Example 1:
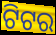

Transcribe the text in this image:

ଟିଟର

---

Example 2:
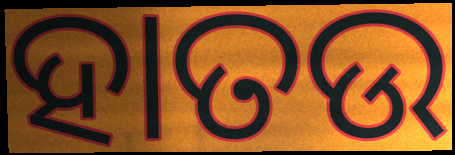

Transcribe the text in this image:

ହାତଉ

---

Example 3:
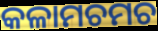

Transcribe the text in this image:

କଳାମଚମଚ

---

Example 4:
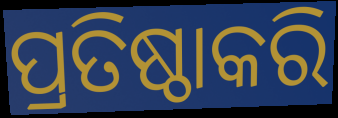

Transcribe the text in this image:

ପ୍ରତିଷ୍ଠାକରି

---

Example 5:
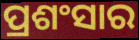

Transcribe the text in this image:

ପ୍ରଶଂସାର